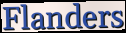
Flanders